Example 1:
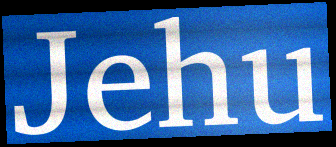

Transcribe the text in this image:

Jehu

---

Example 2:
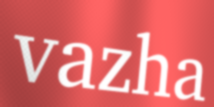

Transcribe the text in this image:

vazha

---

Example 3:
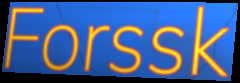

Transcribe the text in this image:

Forssk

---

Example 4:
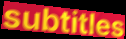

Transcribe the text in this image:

subtitles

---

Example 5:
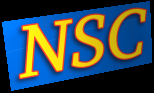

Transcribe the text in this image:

NSC